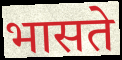
भासते